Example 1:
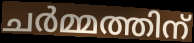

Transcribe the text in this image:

ചർമ്മത്തിന്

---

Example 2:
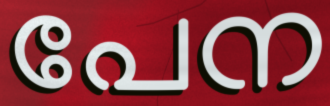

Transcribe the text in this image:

പേന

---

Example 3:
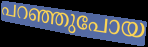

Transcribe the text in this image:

പറഞ്ഞുപോയ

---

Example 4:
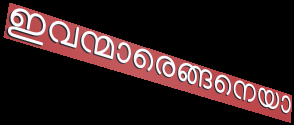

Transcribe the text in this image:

ഇവന്മാരെങ്ങനെയാ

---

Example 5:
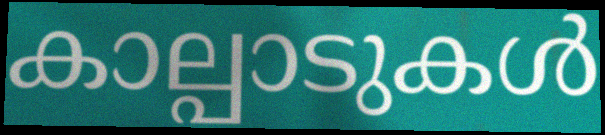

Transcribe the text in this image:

കാല്പാടുകൾ